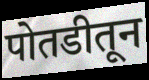
पोतडीतून